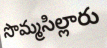
సొమ్మసిల్లారు